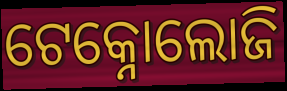
ଟେକ୍ନୋଲୋଜି